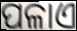
ପଳାଏ